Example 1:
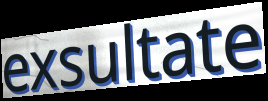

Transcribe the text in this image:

exsultate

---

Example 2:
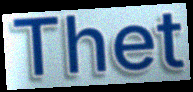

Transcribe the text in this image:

Thet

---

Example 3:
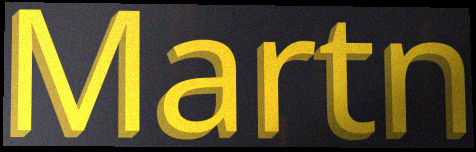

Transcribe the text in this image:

Martn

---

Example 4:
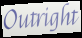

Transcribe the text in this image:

Outright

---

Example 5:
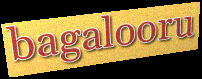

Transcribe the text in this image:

bagalooru